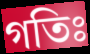
গতিঃ